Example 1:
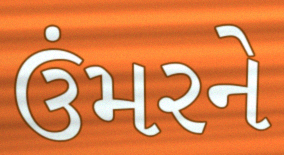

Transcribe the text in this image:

ઉંમરને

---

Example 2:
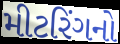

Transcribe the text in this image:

મીટરિંગનો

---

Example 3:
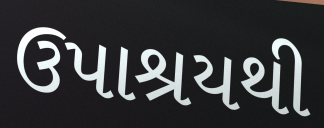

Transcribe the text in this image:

ઉપાશ્રયથી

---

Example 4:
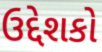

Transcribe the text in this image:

ઉદ્દેશકો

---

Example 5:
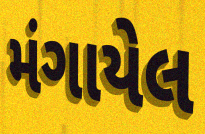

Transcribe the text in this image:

મંગાયેલ